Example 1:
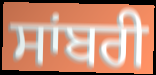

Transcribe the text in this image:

ਸਾਂਬਰੀ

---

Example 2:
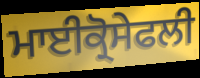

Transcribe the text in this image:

ਮਾਈਕ੍ਰੋਸੇਫਲੀ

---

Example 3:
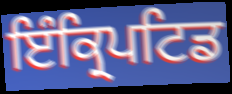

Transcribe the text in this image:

ਇੰਕ੍ਰਿਪਟਿਡ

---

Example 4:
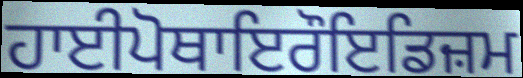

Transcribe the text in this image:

ਹਾਈਪੋਥਾਇਰੌਇਡਿਜ਼ਮ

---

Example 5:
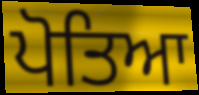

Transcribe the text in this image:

ਪੋਤਿਆ